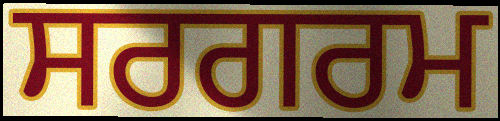
ਸਰਗਰਮ